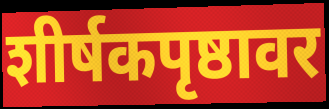
शीर्षकपृष्ठावर